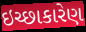
ઇચ્છાકારેણ